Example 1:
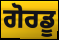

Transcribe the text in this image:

ਗੋਰਡੂ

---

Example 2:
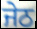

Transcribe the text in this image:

ਜੇਠ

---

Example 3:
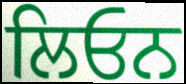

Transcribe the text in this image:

ਲਿਓਨ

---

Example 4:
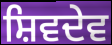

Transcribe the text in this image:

ਸ਼ਿਵਦੇਵ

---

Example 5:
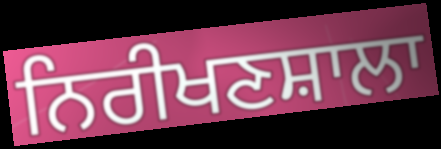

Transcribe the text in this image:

ਨਿਰੀਖਣਸ਼ਾਲਾ